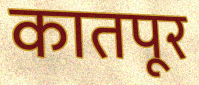
कातपूर